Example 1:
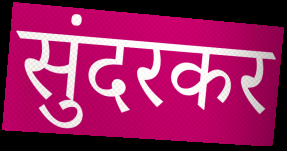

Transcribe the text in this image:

सुंदरकर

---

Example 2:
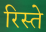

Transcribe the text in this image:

रिस्ते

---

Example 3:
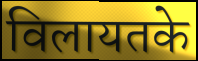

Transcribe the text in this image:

विलायतके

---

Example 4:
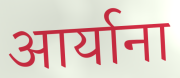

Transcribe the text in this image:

आर्याना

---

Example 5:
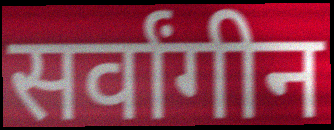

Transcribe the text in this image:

सर्वांगीन